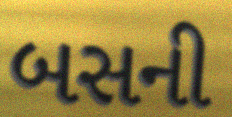
બસની